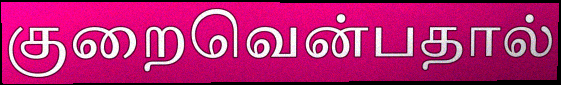
குறைவென்பதால்